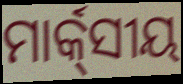
ମାର୍କ୍‍ସୀୟ